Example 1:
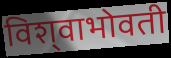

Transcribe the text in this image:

विश्वाभोवती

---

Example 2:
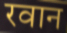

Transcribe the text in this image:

रवान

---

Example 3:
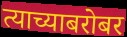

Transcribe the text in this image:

त्याच्याबरोबर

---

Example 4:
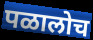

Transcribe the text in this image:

पळालोच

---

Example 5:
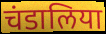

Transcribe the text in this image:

चंडालिया